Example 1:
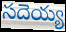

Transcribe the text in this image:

సదెయ్య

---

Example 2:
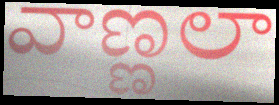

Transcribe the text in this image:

వాణ్ణలా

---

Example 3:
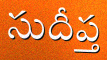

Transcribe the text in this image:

సుదీప్త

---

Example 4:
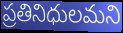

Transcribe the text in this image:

ప్రతినిధులమని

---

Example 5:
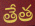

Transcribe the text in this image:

తేత